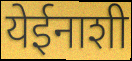
येईनाशी